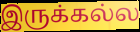
இருக்கல்ல